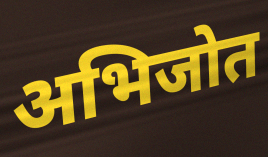
अभिजोत